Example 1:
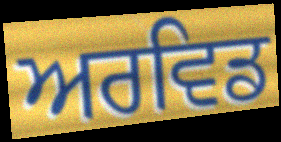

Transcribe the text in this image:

ਅਰਵਿਡ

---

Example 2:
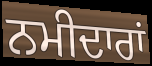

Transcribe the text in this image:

ਨਮੀਦਾਰਾਂ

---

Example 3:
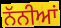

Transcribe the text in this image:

ਨੱਨੀਆਂ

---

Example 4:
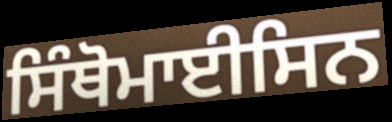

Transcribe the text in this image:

ਸਿੰਥੋਮਾਈਸਿਨ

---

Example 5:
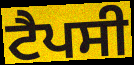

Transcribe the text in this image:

ਟੈਪਸੀ